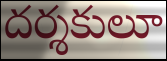
దర్శకులూ